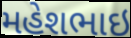
મહેશભાઇ